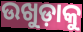
ଉଖୁଡ଼ାକୁ